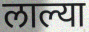
लाल्या